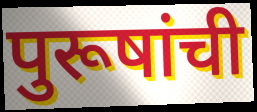
पुरूषांची